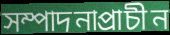
সম্পাদনাপ্রাচীন